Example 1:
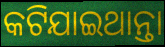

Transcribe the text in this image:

କଟିଯାଇଥାନ୍ତା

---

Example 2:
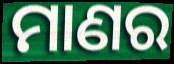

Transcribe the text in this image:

ମାଣର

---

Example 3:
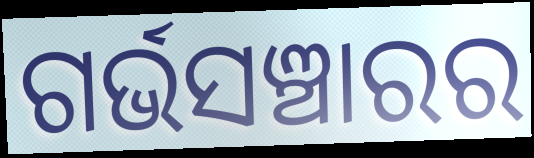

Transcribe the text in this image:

ଗର୍ଭସଞ୍ଚାରର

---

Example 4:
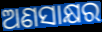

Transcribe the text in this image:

ଅଣସାକ୍ଷର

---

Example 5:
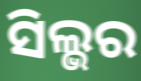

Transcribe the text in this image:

ସିଲ୍ଭର